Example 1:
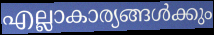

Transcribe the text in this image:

എല്ലാകാര്യങ്ങൾക്കും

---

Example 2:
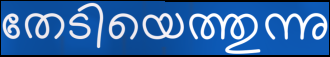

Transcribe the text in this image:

തേടിയെത്തുന്നു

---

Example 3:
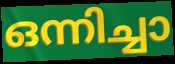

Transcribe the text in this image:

ഒന്നിച്ചാ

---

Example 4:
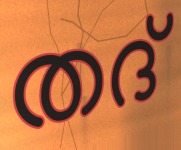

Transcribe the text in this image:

തദ്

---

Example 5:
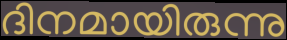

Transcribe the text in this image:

ദിനമായിരുന്നു